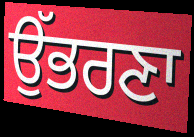
ਉੱਭਰਣਾ